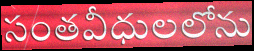
సంతవీధులలోను